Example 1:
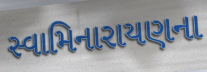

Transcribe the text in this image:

સ્વામિનારાયણના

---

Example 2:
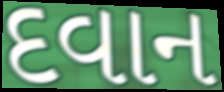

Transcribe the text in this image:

દવાન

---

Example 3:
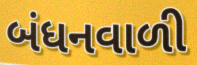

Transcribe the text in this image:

બંધનવાળી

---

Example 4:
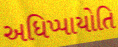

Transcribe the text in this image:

અધિપ્પાયોતિ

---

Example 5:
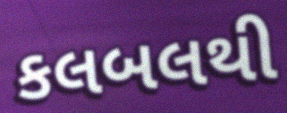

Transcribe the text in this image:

કલબલથી